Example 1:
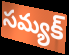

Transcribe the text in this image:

సమ్యక్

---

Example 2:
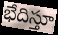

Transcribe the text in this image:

భేదిస్తూ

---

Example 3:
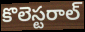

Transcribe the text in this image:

కొలెస్టరాల్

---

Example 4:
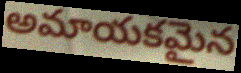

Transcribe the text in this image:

అమాయకమైన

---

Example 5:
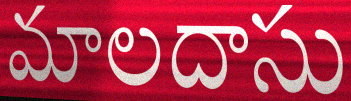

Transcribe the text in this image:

మాలదాసు